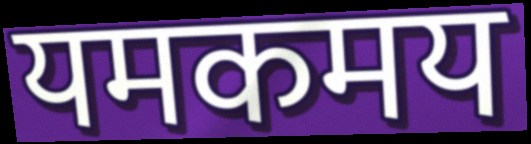
यमकमय